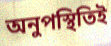
অনুপস্থিতিই